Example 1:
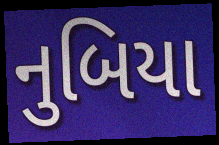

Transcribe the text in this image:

નુબિયા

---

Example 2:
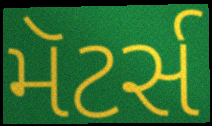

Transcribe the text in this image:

મૅટર્સ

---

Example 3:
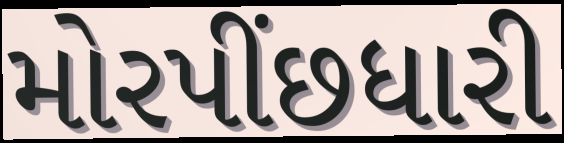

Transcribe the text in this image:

મોરપીંછધારી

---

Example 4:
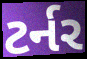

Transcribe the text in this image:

ટર્નર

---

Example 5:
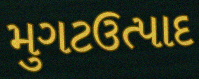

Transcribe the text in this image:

મુગટઉત્પાદ